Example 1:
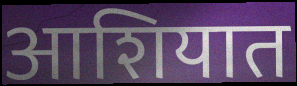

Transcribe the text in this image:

आशियात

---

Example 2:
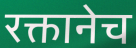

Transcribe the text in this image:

रक्तानेच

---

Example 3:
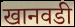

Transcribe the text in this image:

खानवडी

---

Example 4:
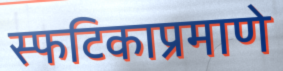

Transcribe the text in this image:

स्फटिकाप्रमाणे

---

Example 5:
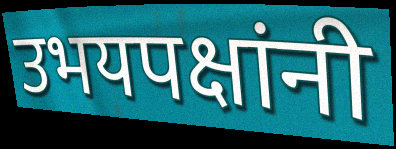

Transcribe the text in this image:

उभयपक्षांनी